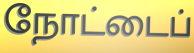
நோட்டைப்